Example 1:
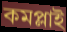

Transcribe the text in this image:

কমপ্লাই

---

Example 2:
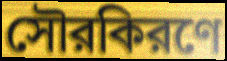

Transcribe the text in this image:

সৌরকিরণে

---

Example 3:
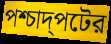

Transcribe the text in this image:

পশ্চাদ্পটের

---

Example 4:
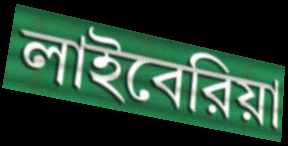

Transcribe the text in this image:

লাইবেরিয়া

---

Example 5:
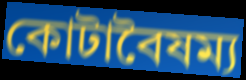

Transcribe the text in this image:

কোটাবৈষম্য